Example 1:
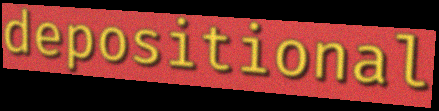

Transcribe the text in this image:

depositional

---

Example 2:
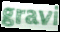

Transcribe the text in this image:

gravi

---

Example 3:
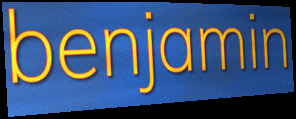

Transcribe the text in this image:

benjamin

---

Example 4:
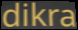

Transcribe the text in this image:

dikra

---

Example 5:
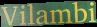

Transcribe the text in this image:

Vilambi